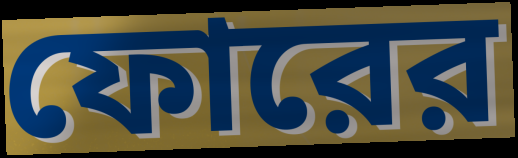
ফোরের